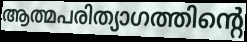
ആത്മപരിത്യാഗത്തിന്റെ